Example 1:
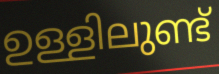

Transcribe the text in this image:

ഉള്ളിലുണ്ട്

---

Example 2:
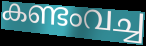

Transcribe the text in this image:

കണ്ടംവച്ച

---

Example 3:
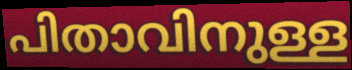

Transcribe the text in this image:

പിതാവിനുള്ള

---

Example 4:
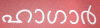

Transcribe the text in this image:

ഹാഗാർ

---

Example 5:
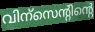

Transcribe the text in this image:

വിന്സെന്റിന്റെ